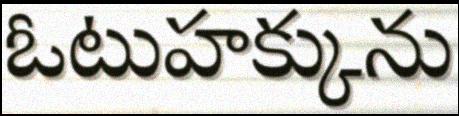
ఓటుహక్కును